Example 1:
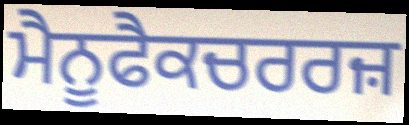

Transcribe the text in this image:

ਮੈਨੂਫੈਕਚਰਰਜ਼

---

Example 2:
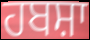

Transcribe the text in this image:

ਹਬਸ਼ਾ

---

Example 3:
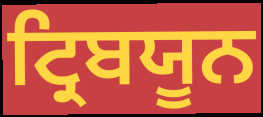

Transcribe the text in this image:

ਟ੍ਰਿਬਯੂਨ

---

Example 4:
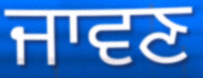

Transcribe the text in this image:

ਜਾਵਣ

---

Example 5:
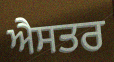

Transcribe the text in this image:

ਐਸਤਰ